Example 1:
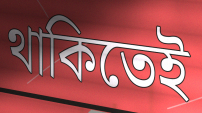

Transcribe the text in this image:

থাকিতেই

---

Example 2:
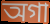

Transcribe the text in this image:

অগা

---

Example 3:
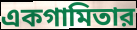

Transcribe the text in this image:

একগামিতার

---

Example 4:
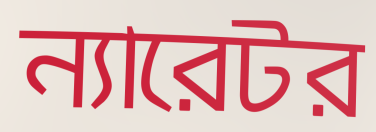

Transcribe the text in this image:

ন্যারেটর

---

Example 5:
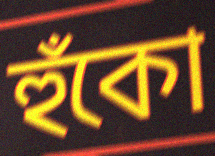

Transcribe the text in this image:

হুঁকো